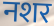
नशर